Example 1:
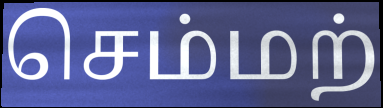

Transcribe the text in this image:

செம்மற்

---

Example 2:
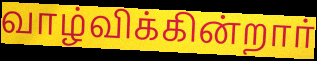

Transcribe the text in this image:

வாழ்விக்கின்றார்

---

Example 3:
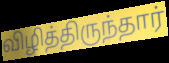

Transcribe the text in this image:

விழித்திருந்தார்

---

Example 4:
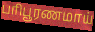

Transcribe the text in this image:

பரிபூரணமாய்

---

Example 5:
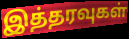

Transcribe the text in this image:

இத்தரவுகள்